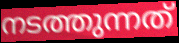
നടത്തുന്നത്